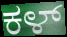
ಕಳ್